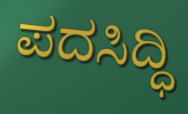
ಪದಸಿದ್ಧಿ